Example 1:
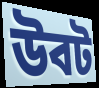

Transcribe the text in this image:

উবট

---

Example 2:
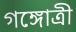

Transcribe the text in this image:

গঙ্গোত্রী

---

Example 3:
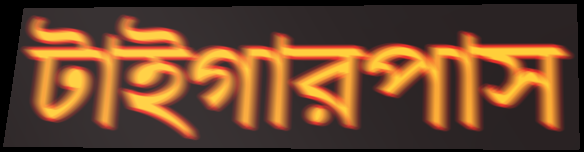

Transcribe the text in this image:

টাইগারপাস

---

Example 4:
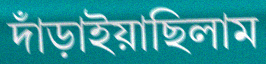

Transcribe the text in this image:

দাঁড়াইয়াছিলাম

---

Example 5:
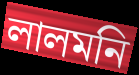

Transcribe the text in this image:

লালমনি